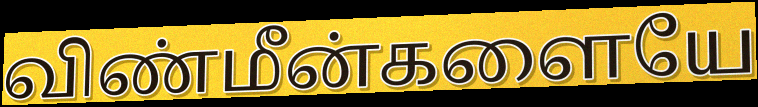
விண்மீன்களையே